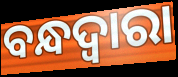
ବନ୍ଧଦ୍ବାରା